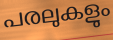
പരലുകളും